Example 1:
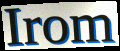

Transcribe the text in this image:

Irom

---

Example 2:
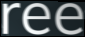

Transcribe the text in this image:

ree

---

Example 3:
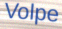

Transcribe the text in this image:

Volpe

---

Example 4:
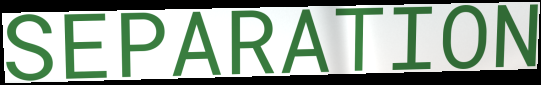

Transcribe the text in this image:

SEPARATION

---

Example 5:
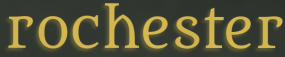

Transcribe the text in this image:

rochester